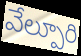
వేల్పూరి